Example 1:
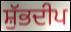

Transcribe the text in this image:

ਸ਼ੁੱਭਦੀਪ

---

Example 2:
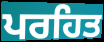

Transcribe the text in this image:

ਪਰਹਿਤ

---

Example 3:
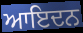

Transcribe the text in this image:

ਆਇਦਨ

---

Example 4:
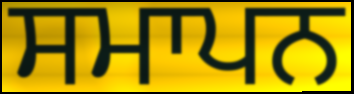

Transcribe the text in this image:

ਸਮਾਪਨ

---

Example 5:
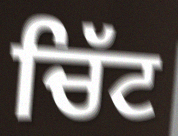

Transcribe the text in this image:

ਚਿੱਟ